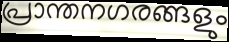
പ്രാന്തനഗരങ്ങളും